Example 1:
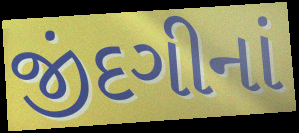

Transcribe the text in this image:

જીંદગીનાં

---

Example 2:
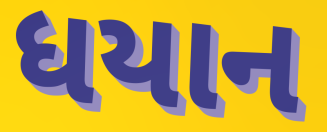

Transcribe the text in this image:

ધયાન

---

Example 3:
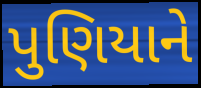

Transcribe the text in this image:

પુણિયાને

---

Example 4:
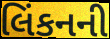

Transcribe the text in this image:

લિંકનની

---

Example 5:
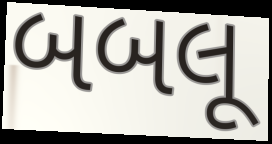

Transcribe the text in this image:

બબલૂ